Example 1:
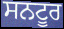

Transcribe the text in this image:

ਸਨਟੂਰ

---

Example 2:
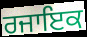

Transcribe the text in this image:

ਰਜਾਇਕ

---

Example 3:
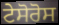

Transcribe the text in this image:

ਟੇਸੋਰੋਸ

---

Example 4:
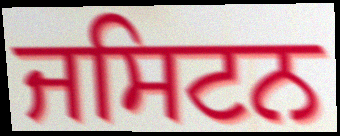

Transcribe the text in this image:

ਜਸਿਟਨ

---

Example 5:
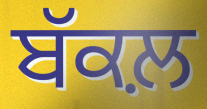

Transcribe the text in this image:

ਬੱਕਲ਼